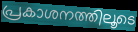
പ്രകാശനത്തിലൂടെ